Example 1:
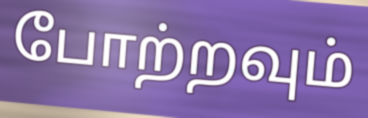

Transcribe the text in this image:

போற்றவும்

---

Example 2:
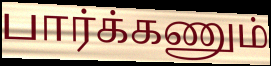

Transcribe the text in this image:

பார்க்கணும்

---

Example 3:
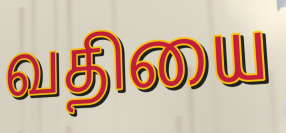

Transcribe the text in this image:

வதியை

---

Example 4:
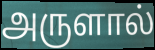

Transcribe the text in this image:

அருளால்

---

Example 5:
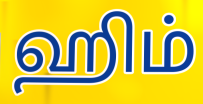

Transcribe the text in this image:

ஹிம்